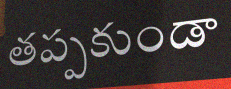
తప్పకుండా